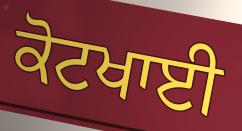
ਕੋਟਖਾਈ